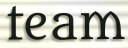
team